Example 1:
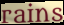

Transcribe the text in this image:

rains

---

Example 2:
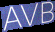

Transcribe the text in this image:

AVB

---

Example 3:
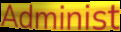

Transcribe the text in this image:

Administ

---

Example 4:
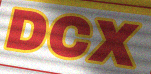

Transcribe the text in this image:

DCX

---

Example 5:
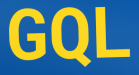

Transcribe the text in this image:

GQL